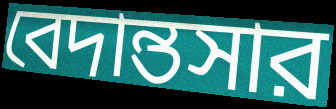
বেদান্তসার